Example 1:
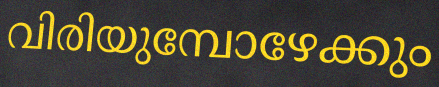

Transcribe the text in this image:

വിരിയുമ്പോഴേക്കും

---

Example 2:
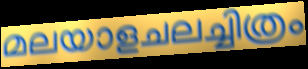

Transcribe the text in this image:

മലയാളചലച്ചിത്രം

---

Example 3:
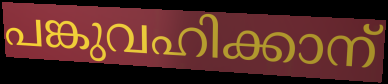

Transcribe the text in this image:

പങ്കുവഹിക്കാന്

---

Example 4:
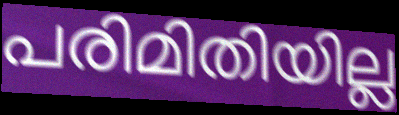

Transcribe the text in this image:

പരിമിതിയില്ല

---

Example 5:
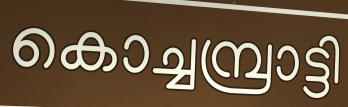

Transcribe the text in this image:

കൊച്ചമ്പ്രാട്ടി